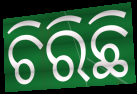
ଚିରିଛି